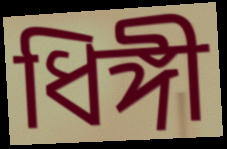
ধিঙ্গী